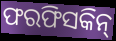
ଫରଫିସକିନ୍